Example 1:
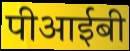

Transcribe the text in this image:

पीआईबी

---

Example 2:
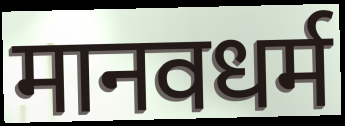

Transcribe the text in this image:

मानवधर्म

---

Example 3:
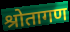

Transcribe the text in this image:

श्रोतागण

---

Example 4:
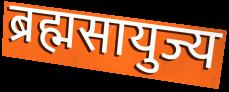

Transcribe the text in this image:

ब्रह्मसायुज्य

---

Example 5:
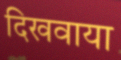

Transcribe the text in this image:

दिखवाया